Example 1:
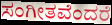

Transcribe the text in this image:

ಸಂಗೀತವೆಂದರೆ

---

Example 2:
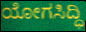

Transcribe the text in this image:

ಯೋಗಸಿದ್ಧಿ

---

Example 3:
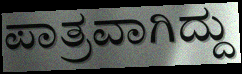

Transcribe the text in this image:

ಪಾತ್ರವಾಗಿದ್ದು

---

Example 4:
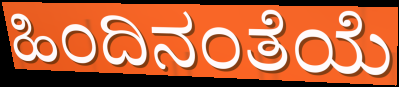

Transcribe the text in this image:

ಹಿಂದಿನಂತೆಯೆ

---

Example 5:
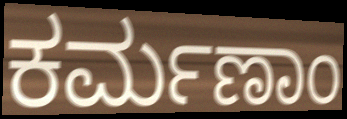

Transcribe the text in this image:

ಕರ್ಮಣಾಂ